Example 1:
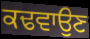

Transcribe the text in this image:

ਕਢਵਾਉਣ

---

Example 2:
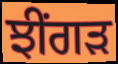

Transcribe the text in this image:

ਝੀਂਗੜ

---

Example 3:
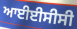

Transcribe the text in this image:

ਆਈਈਸੀਸੀ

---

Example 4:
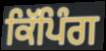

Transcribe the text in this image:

ਕਿੱਪਿੰਗ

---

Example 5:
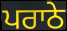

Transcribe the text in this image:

ਪਰਾਠੇ